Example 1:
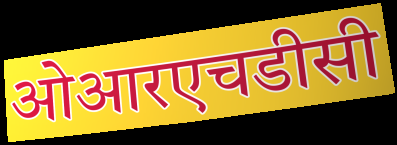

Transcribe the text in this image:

ओआरएचडीसी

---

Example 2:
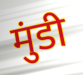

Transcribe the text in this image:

मुंडी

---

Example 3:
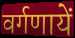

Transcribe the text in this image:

वर्गणायें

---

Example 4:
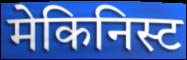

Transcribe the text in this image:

मेकिनिस्ट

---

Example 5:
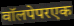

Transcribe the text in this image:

वॉलपेपरएक